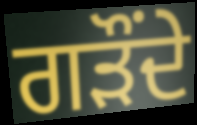
ਗੜੌਂਦੇ